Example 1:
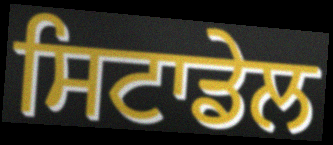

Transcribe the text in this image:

ਸਿਟਾਡੇਲ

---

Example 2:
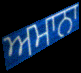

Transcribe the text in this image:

ਅਮਾਨਾ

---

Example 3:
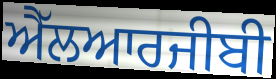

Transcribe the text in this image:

ਐੱਲਆਰਜੀਬੀ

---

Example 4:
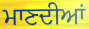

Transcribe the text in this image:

ਮਾਣਦੀਆਂ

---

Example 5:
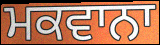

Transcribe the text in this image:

ਮਕਵਾਨਾ